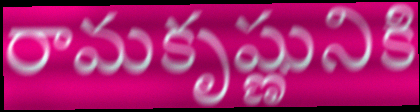
రామకృష్ణునికి